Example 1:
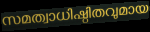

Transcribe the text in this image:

സമത്വാധിഷ്ഠിതവുമായ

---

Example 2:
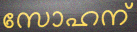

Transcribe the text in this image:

സോഹന്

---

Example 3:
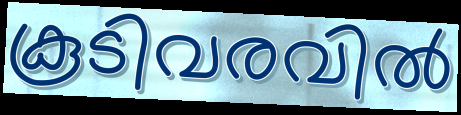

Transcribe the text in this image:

കൂടിവരവിൽ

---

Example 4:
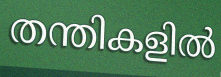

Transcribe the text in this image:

തന്തികളിൽ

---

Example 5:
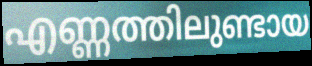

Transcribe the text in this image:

എണ്ണത്തിലുണ്ടായ